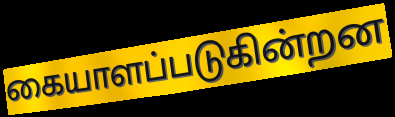
கையாளப்படுகின்றன